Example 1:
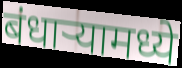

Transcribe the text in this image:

बंधाऱ्यामध्ये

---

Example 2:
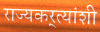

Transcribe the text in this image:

राज्यकर्त्यांशी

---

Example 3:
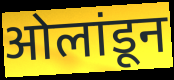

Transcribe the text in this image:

ओलांडून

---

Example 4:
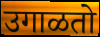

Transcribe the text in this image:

उगाळतो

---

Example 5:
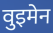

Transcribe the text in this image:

वुइमेन